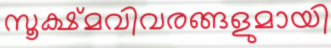
സൂക്ഷ്മവിവരങ്ങളുമായി